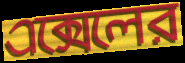
এক্সেলের